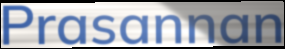
Prasannan